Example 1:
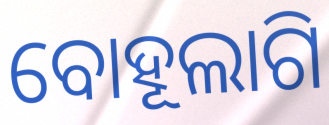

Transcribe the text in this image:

ବୋହୂଲାଗି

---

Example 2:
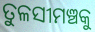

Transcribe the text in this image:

ତୁଳସୀମଞ୍ଚକୁ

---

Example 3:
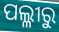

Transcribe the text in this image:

ପଲ୍ଳୀରୁ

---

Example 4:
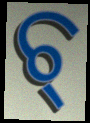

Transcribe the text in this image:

ଚ୍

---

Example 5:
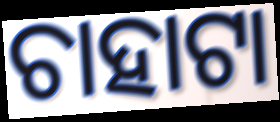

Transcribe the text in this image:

ଚାହାଟା